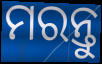
ମରନ୍ତୁ